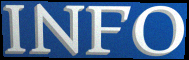
INFO